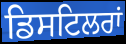
ਡਿਸਟਿਲਰਾਂ